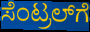
ಸೆಂಟ್ರಲ್‌ಗೆ